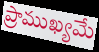
ప్రాముఖ్యమే